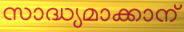
സാദ്ധ്യമാക്കാന്